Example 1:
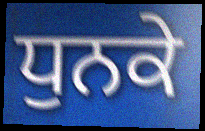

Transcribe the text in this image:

ਧੁਨਕੇ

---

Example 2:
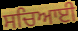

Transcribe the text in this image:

ਸਚਿਆਈ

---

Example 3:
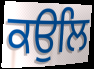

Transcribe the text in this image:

ਕਉਲਿ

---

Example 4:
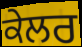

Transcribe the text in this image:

ਕੇਲਰ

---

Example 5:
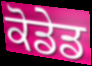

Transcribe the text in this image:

ਕੋਡੇਡ